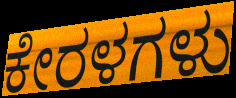
ಕೇರಳಗಳು